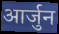
आर्जुन